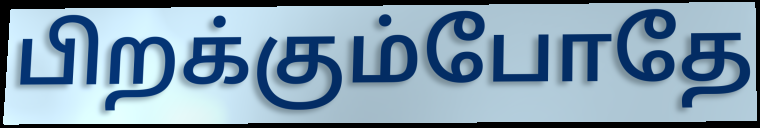
பிறக்கும்போதே